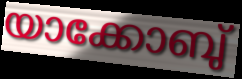
യാക്കോബു്